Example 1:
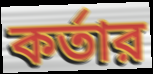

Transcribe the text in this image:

কর্তার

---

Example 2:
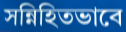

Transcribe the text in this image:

সন্নিহিতভাবে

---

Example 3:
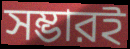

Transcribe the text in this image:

সম্ভারই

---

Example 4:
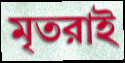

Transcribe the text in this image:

মৃতরাই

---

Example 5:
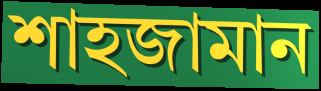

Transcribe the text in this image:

শাহজামান